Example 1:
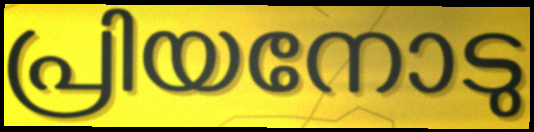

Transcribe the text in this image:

പ്രിയനോടു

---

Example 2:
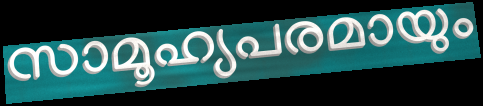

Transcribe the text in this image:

സാമൂഹ്യപരമായും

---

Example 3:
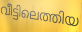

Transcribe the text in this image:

വീട്ടിലെത്തിയ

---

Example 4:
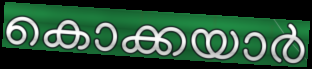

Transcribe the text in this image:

കൊക്കയാർ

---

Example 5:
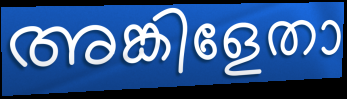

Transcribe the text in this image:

അങ്കിളേതാ